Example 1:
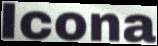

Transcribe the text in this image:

Icona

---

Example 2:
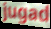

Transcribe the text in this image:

jugad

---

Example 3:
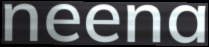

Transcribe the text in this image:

neena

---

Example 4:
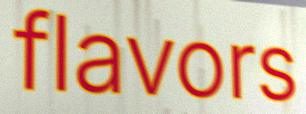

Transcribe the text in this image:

flavors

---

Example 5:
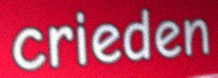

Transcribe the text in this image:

crieden